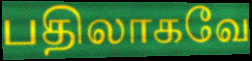
பதிலாகவே